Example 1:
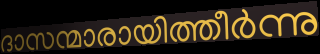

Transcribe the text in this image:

ദാസന്മാരായിത്തീർന്നു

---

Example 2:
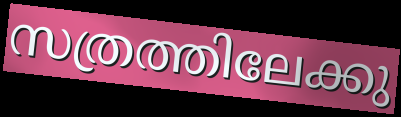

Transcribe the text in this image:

സത്രത്തിലേക്കു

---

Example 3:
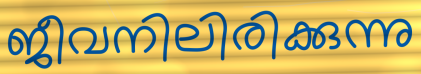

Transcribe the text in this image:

ജീവനിലിരിക്കുന്നു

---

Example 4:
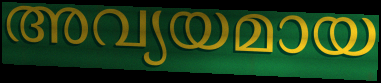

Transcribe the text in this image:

അവ്യയമായ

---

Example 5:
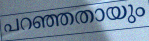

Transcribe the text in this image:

പറഞ്ഞതായും